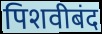
पिशवीबंद